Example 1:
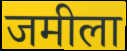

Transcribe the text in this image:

जमीला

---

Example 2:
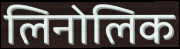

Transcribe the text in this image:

लिनोलिक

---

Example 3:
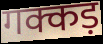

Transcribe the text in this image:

गक्कड़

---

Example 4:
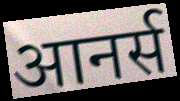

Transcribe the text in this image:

आनर्स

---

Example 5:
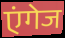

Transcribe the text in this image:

एंगेज